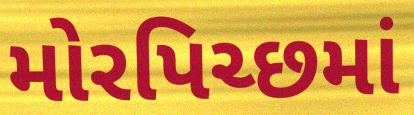
મોરપિચ્છમાં